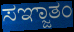
ಸಞ್ಜಾತಂ